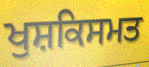
ਖੁਸ਼ਕਿਸਮਤ